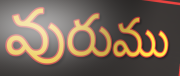
వురుము